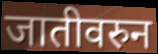
जातीवरुन